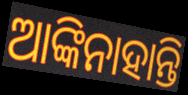
ଆଙ୍କିନାହାନ୍ତି